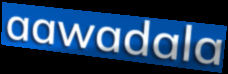
aawadala